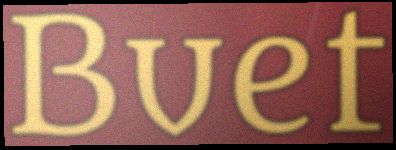
Buet